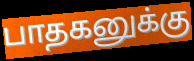
பாதகனுக்கு